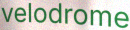
velodrome